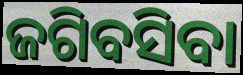
ଜଗିବସିବା